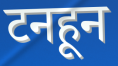
टनहून